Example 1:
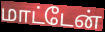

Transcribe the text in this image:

மாட்டேன்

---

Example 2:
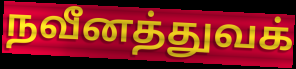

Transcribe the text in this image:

நவீனத்துவக்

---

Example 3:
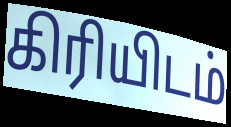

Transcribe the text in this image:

கிரியிடம்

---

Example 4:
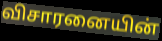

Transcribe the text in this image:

விசாரனையின்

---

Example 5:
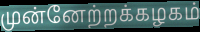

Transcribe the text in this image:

முன்னேற்றக்கழகம்